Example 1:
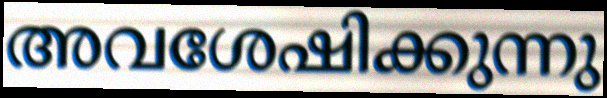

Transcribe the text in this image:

അവശേഷിക്കുന്നു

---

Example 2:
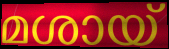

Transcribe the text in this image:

മശായ്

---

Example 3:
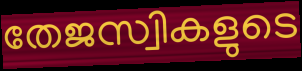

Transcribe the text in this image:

തേജസ്വികളുടെ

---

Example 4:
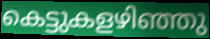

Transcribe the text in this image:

കെട്ടുകളഴിഞ്ഞു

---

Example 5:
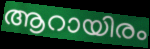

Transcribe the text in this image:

ആറായിരം